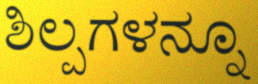
ಶಿಲ್ಪಗಳನ್ನೂ